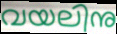
വയലിനു